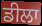
ਡੀਲਾ